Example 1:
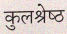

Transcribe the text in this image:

कुलश्रेष्‍ठ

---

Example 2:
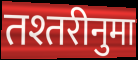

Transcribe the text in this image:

तश्तरीनुमा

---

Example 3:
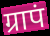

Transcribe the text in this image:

ग्रापं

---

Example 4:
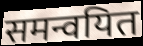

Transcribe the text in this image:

समन्वयित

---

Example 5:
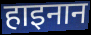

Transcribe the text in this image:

हाइनान